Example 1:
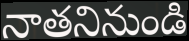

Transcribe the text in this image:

నాతనినుండి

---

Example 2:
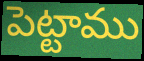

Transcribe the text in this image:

పెట్టాము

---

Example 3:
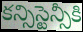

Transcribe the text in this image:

కన్సిస్టెన్సీకి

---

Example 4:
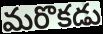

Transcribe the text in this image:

మరొకడు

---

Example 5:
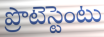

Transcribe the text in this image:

ప్రొటెస్టెంటు